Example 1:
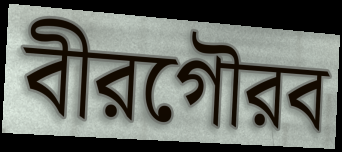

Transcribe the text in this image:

বীরগৌরব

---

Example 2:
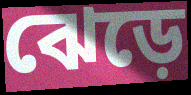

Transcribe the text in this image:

ঝেড়ে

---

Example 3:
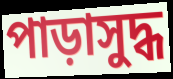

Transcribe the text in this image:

পাড়াসুদ্ধ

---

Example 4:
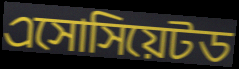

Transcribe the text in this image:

এসোসিয়েটড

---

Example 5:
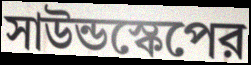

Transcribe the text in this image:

সাউন্ডস্কেপের